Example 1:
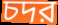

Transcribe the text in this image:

চদর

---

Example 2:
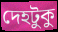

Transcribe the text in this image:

দেহটুকু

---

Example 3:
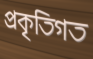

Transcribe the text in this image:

প্রকৃতিগত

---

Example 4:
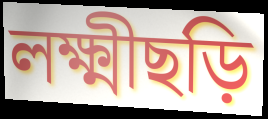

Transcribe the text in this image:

লক্ষ্মীছড়ি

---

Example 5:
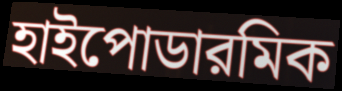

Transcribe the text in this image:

হাইপোডারমিক